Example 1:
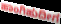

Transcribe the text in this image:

ಹಾಂಗಿಹುದೀಗ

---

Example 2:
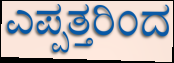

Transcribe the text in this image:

ಎಪ್ಪತ್ತರಿಂದ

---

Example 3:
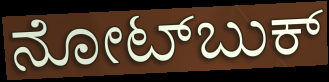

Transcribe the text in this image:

ನೋಟ್‌ಬುಕ್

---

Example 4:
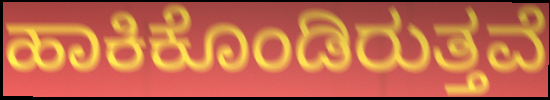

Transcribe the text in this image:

ಹಾಕಿಕೊಂಡಿರುತ್ತವೆ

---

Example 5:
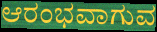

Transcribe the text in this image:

ಆರಂಭವಾಗುವ